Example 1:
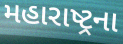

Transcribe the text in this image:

મહારાષ્ટ્રના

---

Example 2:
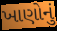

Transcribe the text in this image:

ખાણોનું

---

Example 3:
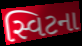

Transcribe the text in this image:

સ્વિટના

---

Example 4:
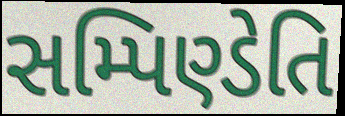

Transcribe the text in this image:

સમ્પિણ્ડેતિ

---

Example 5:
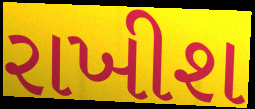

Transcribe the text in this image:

રાખીશ